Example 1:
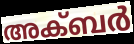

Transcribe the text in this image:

അക്ബർ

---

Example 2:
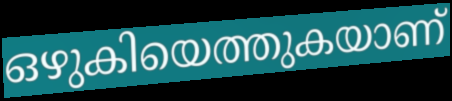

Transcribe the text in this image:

ഒഴുകിയെത്തുകയാണ്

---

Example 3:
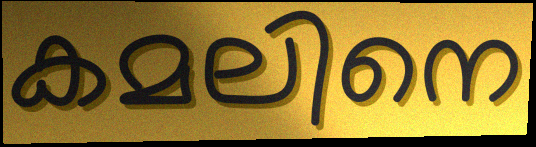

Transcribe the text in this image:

കമലിനെ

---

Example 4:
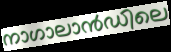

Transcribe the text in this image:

നാഗാലാൻഡിലെ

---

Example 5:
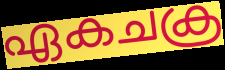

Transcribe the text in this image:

ഏകചക്ര